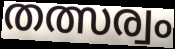
തത്സര്വം